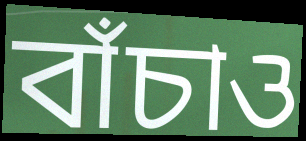
বাঁচাও